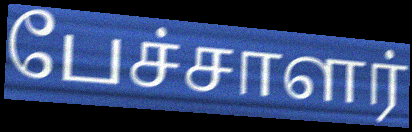
பேச்சாளர்